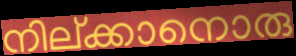
നില്ക്കാനൊരു